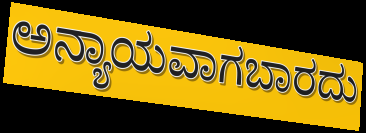
ಅನ್ಯಾಯವಾಗಬಾರದು